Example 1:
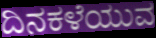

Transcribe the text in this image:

ದಿನಕಳೆಯುವ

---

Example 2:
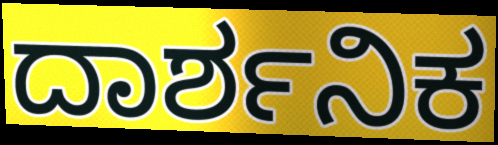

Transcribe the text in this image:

ದಾರ್ಶನಿಕ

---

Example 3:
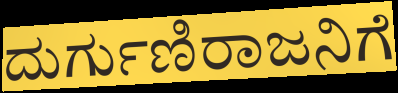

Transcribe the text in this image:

ದುರ್ಗುಣಿರಾಜನಿಗೆ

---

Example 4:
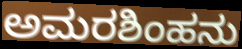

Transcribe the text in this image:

ಅಮರಶಿಂಹನು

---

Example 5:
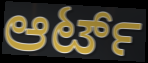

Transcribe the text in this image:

ಆರ್ಟ್